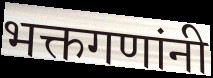
भक्तगणांनी